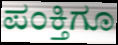
ಪಂಕ್ತಿಗೂ